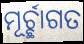
ମୂର୍ଚ୍ଛାଗତ